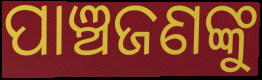
ପାଞ୍ଚଜଣଙ୍କୁ